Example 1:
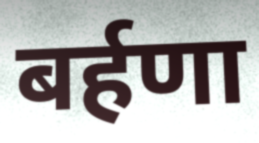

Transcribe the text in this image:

बर्हणा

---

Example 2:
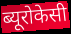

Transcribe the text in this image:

ब्यूरोकेसी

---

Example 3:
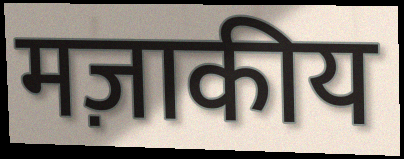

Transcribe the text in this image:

मज़ाकीय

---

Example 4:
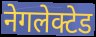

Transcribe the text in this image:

नेगलेक्टेड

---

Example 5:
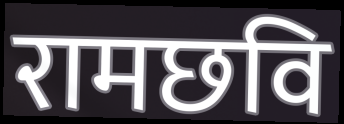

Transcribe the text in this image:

रामछवि